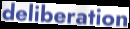
deliberation